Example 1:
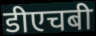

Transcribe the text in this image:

डीएचबी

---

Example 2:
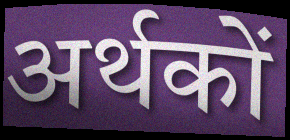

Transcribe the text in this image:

अर्थकों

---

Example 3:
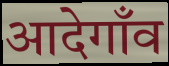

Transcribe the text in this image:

आदेगाँव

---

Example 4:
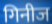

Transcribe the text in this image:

गिनीज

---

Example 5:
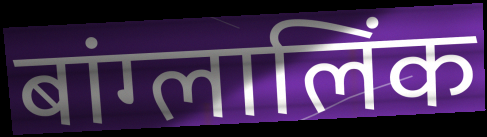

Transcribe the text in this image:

बांग्लालिंक